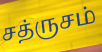
சத்ருசம்